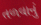
તળવાનું